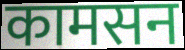
कामसन